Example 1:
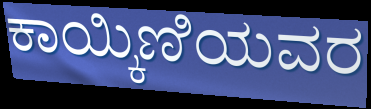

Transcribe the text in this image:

ಕಾಯ್ಕಿಣಿಯವರ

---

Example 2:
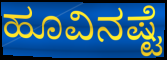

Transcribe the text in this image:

ಹೂವಿನಷ್ಟೆ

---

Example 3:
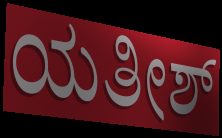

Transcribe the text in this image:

ಯತೀಶ್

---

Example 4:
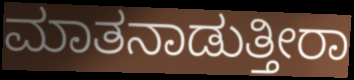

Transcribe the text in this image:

ಮಾತನಾಡುತ್ತೀರಾ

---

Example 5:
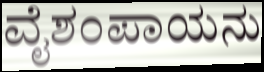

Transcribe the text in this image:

ವೈಶಂಪಾಯನು